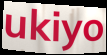
ukiyo